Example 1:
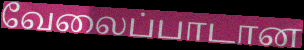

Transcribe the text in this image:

வேலைப்பாடான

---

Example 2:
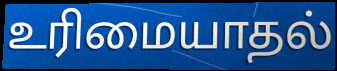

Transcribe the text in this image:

உரிமையாதல்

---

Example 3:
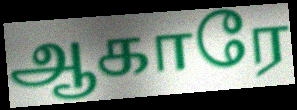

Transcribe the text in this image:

ஆகாரே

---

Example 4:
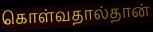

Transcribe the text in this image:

கொள்வதால்தான்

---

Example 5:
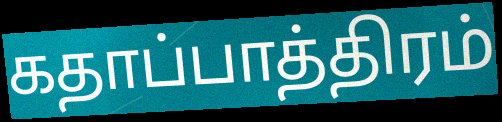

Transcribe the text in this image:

கதாப்பாத்திரம்